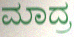
ಮಾದ್ರ